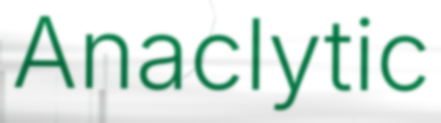
Anaclytic